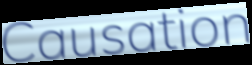
Causation